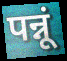
पन्नूं